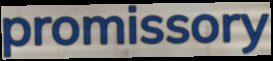
promissory